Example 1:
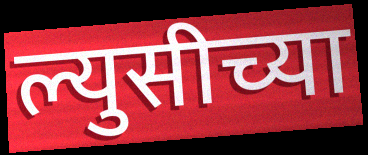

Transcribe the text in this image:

ल्युसीच्या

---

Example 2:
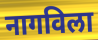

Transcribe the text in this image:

नागविला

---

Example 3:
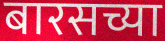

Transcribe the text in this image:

बारसच्या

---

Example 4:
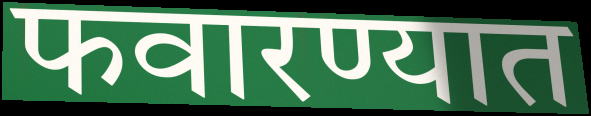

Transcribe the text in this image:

फवारण्यात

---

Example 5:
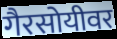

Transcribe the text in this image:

गैरसोयीवर